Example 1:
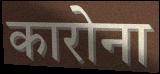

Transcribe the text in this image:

कारोना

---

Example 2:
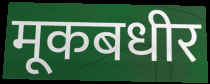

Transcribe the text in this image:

मूकबधीर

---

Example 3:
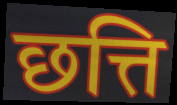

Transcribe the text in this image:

छत्ति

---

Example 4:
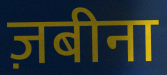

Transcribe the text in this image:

ज़बीना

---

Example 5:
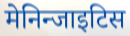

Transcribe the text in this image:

मेनिन्जाइटिस